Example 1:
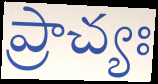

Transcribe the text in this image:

ప్రాచ్యః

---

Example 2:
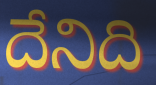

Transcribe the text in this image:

దేనిది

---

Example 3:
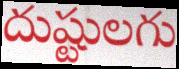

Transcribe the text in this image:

దుష్టులగు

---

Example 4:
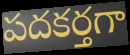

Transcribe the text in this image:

పదకర్తగా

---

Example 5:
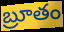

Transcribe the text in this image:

బ్రూతం